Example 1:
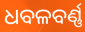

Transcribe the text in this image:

ଧବଳବର୍ଣ୍ଣ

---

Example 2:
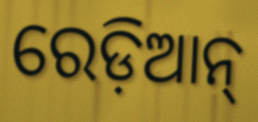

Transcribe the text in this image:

ରେଡ଼ିଆନ୍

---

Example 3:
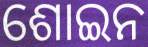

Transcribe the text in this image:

ଶୋଇନ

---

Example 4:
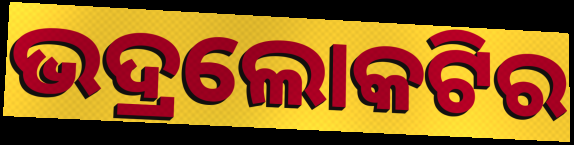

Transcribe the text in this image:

ଭଦ୍ରଲୋକଟିର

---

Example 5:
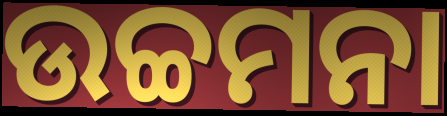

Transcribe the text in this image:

ଉଚ୍ଚମନା